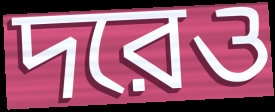
দরেও